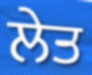
ਲੇਤ